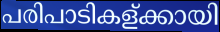
പരിപാടികള്ക്കായി